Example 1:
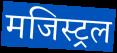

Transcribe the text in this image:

मजिस्ट्रल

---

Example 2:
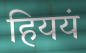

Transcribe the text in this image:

हिययं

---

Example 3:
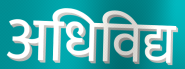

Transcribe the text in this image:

अधिविद्य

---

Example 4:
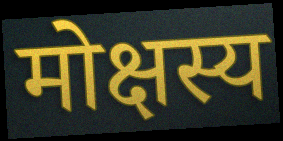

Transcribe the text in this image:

मोक्षस्य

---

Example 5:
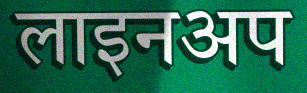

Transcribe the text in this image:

लाइनअप